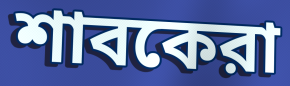
শাবকেরা